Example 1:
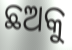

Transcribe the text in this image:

ଛଅକୁ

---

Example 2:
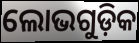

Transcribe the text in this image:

ଲୋଭଗୁଡ଼ିକ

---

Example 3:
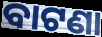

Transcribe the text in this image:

ବାଟଣା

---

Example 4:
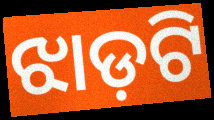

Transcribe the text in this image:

ଝାଡ଼ଟି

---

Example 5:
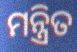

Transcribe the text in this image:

ମନ୍ତ୍ରିତ